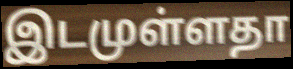
இடமுள்ளதா